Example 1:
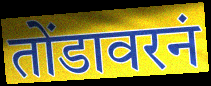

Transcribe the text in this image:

तोंडावरनं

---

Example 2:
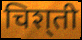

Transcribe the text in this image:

चिश्ती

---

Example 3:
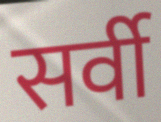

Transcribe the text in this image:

सर्वी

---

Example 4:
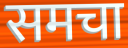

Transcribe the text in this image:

समचा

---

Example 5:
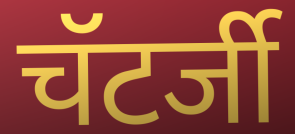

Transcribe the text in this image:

चॅटर्जी